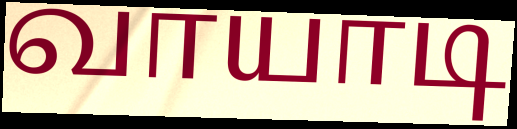
வாயாடி